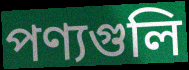
পণ্যগুলি